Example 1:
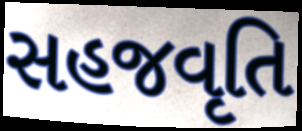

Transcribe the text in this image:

સહજવૃતિ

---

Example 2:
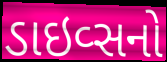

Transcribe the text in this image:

ડાઇવ્સનો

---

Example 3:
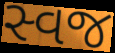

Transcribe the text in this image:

સ્વજ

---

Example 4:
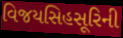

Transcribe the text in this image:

વિજયસિહસૂરિની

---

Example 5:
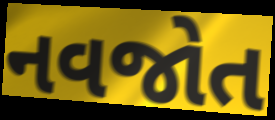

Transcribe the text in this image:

નવજોત